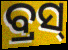
ବ୍ରସ୍